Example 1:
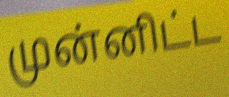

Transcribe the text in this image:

முன்னிட்ட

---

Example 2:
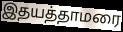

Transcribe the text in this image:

இதயத்தாமரை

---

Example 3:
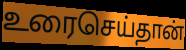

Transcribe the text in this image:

உரைசெய்தான்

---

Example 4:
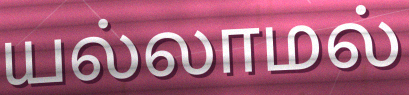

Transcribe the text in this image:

யல்லாமல்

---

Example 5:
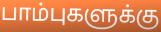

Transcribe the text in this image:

பாம்புகளுக்கு